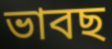
ভাবছ